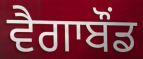
ਵੈਗਾਬੌਂਡ